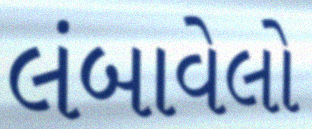
લંબાવેલો